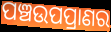
ପଞ୍ଚଉପପ୍ରାଣର